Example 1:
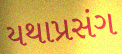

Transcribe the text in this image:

યથાપ્રસંગ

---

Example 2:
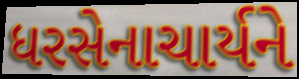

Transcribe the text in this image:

ધરસેનાચાર્યને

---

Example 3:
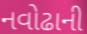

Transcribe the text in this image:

નવોઢાની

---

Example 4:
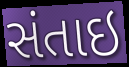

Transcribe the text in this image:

સંતાઇ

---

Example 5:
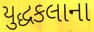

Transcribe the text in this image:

યુદ્ધકલાના